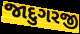
જાદુગરજી